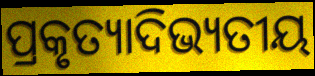
ପ୍ରକୃତ୍ୟାଦିଭ୍ୟତୀୟ